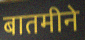
बातमीने